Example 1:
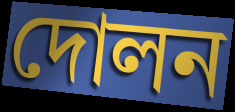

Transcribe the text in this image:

দোলন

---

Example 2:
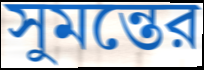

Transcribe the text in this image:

সুমন্তের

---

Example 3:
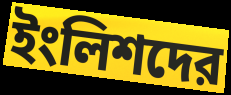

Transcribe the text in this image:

ইংলিশদের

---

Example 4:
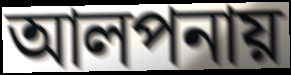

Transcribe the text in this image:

আলপনায়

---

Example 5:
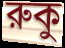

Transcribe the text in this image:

রুকু